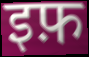
इफ़